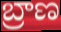
బ్రాణ